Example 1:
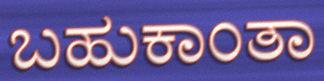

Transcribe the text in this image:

ಬಹುಕಾಂತಾ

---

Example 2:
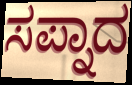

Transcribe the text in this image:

ಸಪ್ನಾದ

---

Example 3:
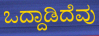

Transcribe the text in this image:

ಒದ್ದಾಡಿದೆವು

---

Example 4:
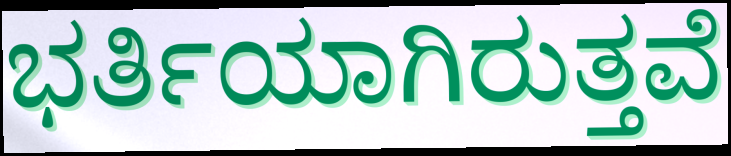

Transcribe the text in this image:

ಭರ್ತಿಯಾಗಿರುತ್ತವೆ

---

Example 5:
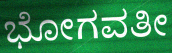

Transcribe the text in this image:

ಭೋಗವತೀ